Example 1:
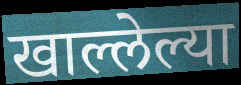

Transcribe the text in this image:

खाल्लेल्या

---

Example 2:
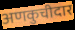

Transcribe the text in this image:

अणकुचीदार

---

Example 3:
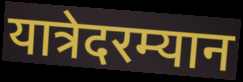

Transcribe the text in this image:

यात्रेदरम्यान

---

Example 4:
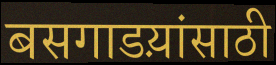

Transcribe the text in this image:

बसगाडय़ांसाठी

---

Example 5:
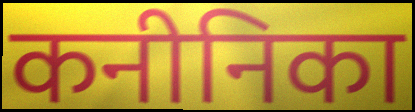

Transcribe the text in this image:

कनीनिका